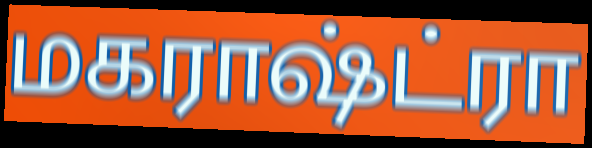
மகராஷ்ட்ரா